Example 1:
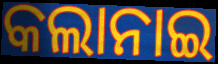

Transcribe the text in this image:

କଲାନାଇ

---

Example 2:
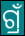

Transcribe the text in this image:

ଗ୍ରଁ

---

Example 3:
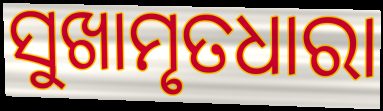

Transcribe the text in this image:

ସୁଖାମୃତଧାରା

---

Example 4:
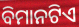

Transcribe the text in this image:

ବିମାନଟିଏ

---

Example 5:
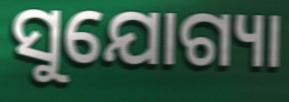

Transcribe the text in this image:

ସୁଯୋଗ୍ୟା